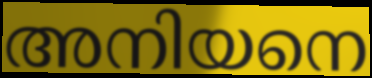
അനിയനെ